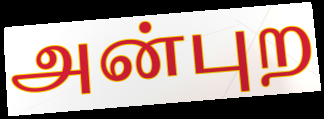
அன்புற